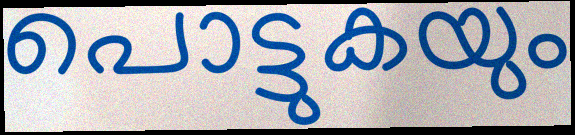
പൊട്ടുകയും